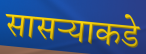
सासऱ्याकडे